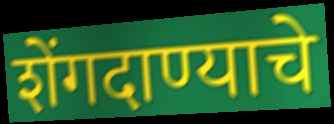
शेंगदाण्याचे